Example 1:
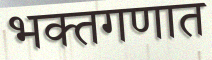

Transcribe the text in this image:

भक्तगणात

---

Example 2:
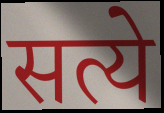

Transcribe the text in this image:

सत्ये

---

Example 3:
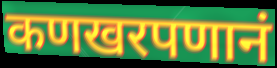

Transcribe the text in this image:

कणखरपणानं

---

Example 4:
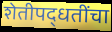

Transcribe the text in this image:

शेतीपद्धतींचा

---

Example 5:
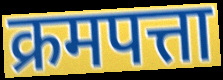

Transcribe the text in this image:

क्रमपत्ता